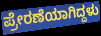
ಪ್ರೇರಣೆಯಾಗಿದ್ದಳು